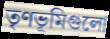
তৃণভূমিগুলো